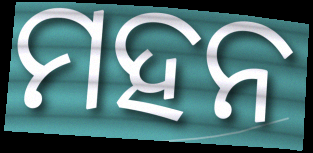
ମହନ